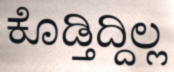
ಕೊಡ್ತಿದ್ದಿಲ್ಲ